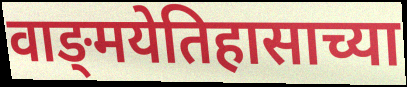
वाङ्‌मयेतिहासाच्या